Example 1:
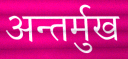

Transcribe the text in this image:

अन्तर्मुख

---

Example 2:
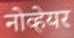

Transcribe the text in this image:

नोव्हेयर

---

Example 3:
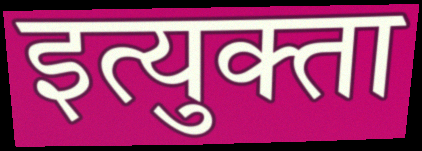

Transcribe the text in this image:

इत्युक्ता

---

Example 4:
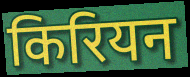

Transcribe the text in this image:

किरियन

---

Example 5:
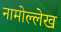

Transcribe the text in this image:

नामोल्लेख